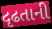
દૃઢતાની